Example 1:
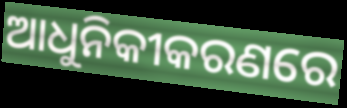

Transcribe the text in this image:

ଆଧୁନିକୀକରଣରେ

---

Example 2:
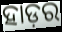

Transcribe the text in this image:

ହାଡ଼ର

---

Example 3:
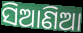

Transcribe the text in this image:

ସିଆଣିଆ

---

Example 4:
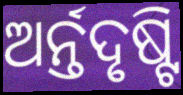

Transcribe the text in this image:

ଅର୍ନ୍ତଦୃଷ୍ଟି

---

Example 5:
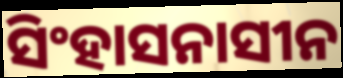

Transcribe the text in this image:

ସିଂହାସନାସୀନ